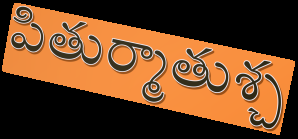
పితుర్మాతుశ్చ